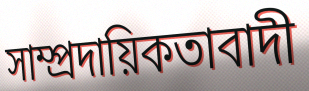
সাম্প্ৰদায়িকতাবাদী